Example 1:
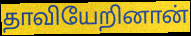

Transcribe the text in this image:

தாவியேறினான்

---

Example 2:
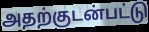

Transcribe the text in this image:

அதற்குடன்பட்டு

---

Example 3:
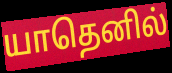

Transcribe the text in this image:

யாதெனில்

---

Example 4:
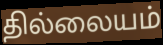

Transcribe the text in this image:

தில்லையம்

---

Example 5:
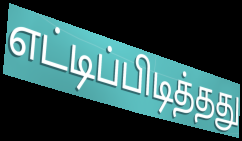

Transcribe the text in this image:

எட்டிப்பிடித்தது